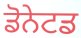
ਡੋਨੇਟਡ